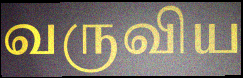
வருவிய